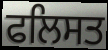
ਫਲਿਸਤ